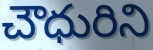
చౌధురిని